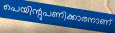
പെയിന്റുപണിക്കാരനാണ്